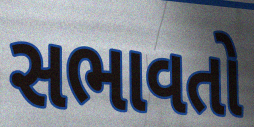
સભાવતો